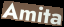
Amita